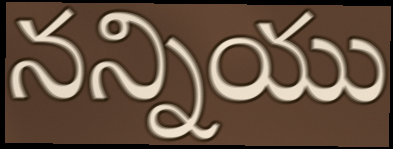
నన్నియు